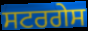
ਸਟਰਗੇਸ